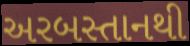
અરબસ્તાનથી